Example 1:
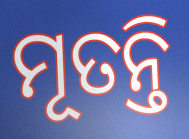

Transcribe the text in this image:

ମୂତନ୍ତି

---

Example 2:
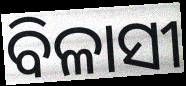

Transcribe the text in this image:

ବିଳାସୀ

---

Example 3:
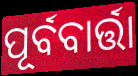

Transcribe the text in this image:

ପୂର୍ବବାର୍ତ୍ତା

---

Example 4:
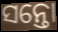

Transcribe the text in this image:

ସନ୍ତୋ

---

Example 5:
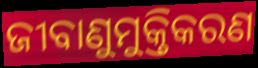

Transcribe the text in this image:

ଜୀବାଣୁମୁକ୍ତିକରଣ